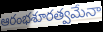
ఆరంభశూరత్వమేనా